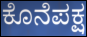
ಕೊನೆಪಕ್ಷ